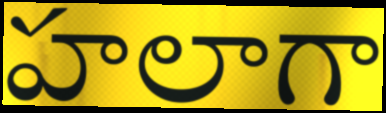
హలాగా